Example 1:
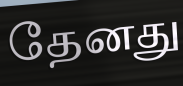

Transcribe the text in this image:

தேனது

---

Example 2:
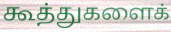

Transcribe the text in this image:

கூத்துகளைக்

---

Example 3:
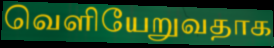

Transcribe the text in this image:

வெளியேறுவதாக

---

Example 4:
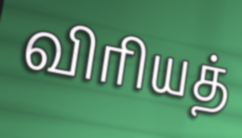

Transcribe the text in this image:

விரியத்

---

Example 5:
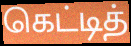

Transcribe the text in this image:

கெட்டித்